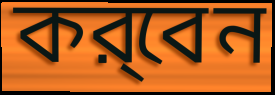
কর্‌বেন